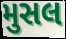
મુસલ